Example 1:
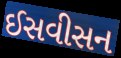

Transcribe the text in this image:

ઈસવીસન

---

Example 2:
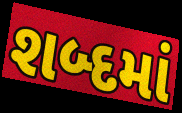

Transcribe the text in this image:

શબ્દમાં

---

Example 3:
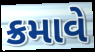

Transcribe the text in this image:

ક્રમાવે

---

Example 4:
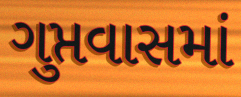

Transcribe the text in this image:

ગુપ્તવાસમાં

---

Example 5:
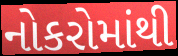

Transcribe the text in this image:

નોકરોમાંથી